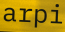
arpi